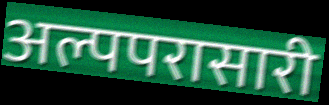
अल्पपरासारी